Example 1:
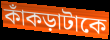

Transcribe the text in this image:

কাঁকড়াটাকে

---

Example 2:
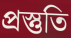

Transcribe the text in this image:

প্রস্তুতি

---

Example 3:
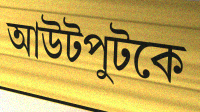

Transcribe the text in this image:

আউটপুটকে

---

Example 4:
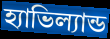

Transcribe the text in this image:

হ্যাভিল্যান্ড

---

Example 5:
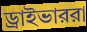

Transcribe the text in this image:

ড্রাইভাররা